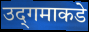
उद्‌गमाकडे